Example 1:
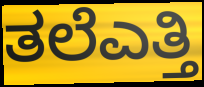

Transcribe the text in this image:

ತಲೆಎತ್ತಿ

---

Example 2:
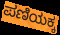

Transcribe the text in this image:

ಪಣಿಯಕ್ಕ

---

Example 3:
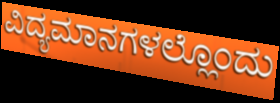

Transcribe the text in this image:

ವಿದ್ಯಮಾನಗಳಲ್ಲೊಂದು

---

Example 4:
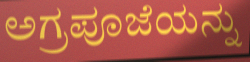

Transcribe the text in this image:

ಅಗ್ರಪೂಜೆಯನ್ನು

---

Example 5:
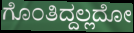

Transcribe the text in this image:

ಗೊಂತಿದ್ದಲ್ಲದೋ